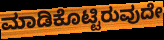
ಮಾಡಿಕೊಟ್ಟಿರುವುದೇ